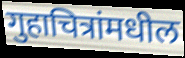
गुहाचित्रांमधील